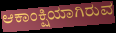
ಆಕಾಂಕ್ಷಿಯಾಗಿರುವ